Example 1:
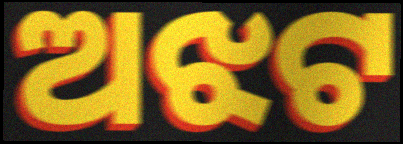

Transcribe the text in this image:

ଅଝଟ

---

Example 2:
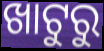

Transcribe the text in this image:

ଖାଟୁରୁ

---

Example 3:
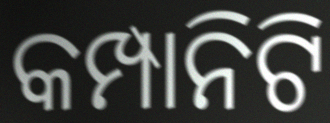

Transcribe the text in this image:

କମ୍ପାନିଟି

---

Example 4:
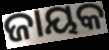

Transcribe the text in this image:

ଜାୟକ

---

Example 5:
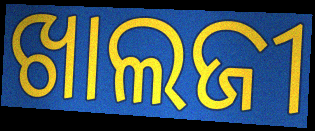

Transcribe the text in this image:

ଖାଲଜୀ